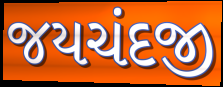
જયચંદજી